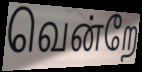
வென்றே